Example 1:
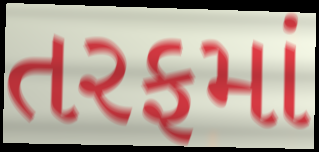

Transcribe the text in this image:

તરફમાં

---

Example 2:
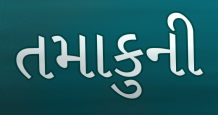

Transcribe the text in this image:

તમાકુની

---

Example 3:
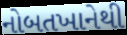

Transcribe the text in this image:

નોબતખાનેથી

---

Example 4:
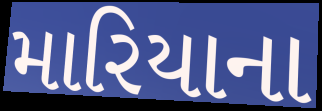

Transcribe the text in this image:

મારિયાના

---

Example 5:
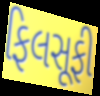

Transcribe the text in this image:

ફિલસૂફી